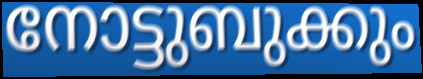
നോട്ടുബുക്കും